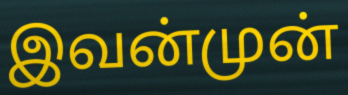
இவன்முன்